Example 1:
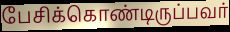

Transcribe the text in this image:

பேசிக்கொண்டிருப்பவர்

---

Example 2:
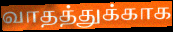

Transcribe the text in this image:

வாதத்துக்காக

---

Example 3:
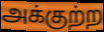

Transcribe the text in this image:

அக்குற்ற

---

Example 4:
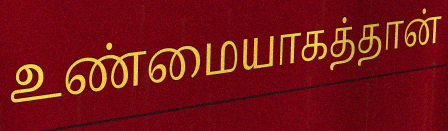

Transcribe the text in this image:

உண்மையாகத்தான்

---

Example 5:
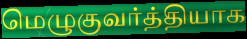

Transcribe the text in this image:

மெழுகுவர்த்தியாக